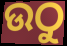
ଉଠୁ